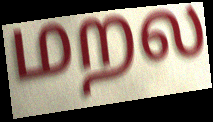
மறல